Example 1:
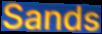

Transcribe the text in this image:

Sands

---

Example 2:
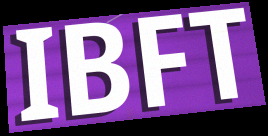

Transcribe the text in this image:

IBFT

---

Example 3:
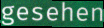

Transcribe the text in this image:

gesehen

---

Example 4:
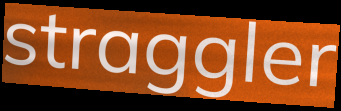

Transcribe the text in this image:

straggler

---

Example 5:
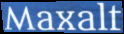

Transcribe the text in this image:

Maxalt